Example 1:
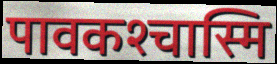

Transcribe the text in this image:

पावकश्चास्मि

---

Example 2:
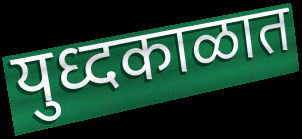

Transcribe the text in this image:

युध्दकाळात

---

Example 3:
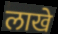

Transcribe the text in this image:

लाखे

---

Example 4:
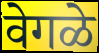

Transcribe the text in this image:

वेगळे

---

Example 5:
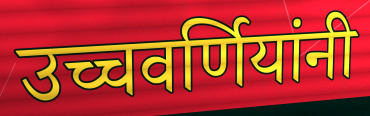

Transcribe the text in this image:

उच्चवर्णियांनी